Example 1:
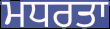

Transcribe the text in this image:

ਮਧਰਤਾ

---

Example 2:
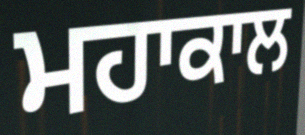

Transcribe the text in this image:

ਮਹਾਕਾਲ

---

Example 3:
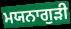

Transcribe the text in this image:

ਮਯਨਾਗੁੜੀ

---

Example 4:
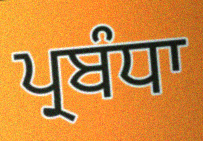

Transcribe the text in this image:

ਪ੍ਰਬੰਧਾ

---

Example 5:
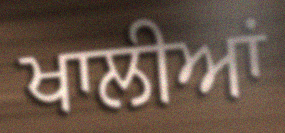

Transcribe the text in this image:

ਖਾਲੀਆਂ